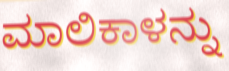
ಮಾಲಿಕಾಳನ್ನು